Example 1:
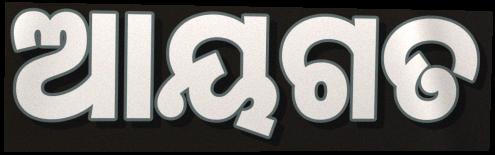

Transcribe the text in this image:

ଆୟଗତ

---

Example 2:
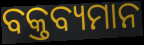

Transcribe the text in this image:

ବକ୍ତବ୍ୟମାନ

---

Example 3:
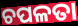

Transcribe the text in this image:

ଚପଳତା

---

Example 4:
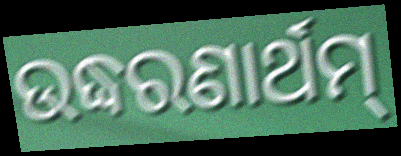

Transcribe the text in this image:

ଉଦ୍ଧରଣାର୍ଥମ୍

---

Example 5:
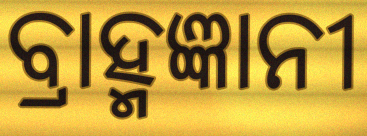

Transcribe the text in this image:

ବ୍ରାହ୍ମଜ୍ଞାନୀ